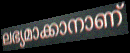
ലഭ്യമാക്കാനാണ്